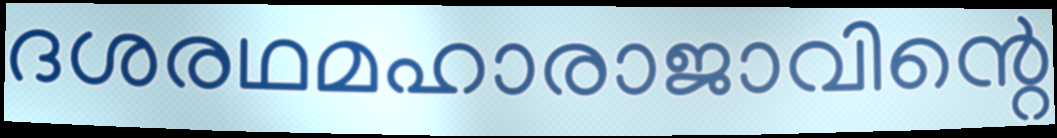
ദശരഥമഹാരാജാവിന്റെ